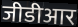
जीडीआर